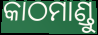
କାଠମାଣ୍ଡୁ